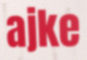
ajke